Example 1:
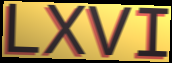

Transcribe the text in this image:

LXVI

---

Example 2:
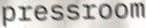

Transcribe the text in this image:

pressroom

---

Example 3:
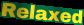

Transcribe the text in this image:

Relaxed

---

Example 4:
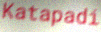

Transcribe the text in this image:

Katapadi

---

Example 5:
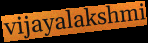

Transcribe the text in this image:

vijayalakshmi